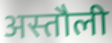
अस्तौली